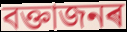
বক্তাজনৰ